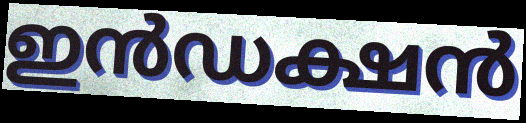
ഇൻഡക്ഷൻ